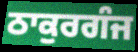
ਠਾਕੁਰਗੰਜ